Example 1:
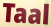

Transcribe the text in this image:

Taal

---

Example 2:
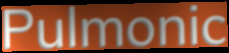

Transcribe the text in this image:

Pulmonic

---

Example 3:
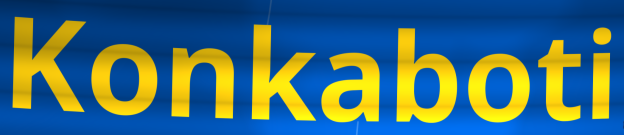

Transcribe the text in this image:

Konkaboti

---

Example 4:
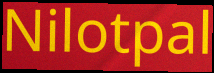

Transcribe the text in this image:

Nilotpal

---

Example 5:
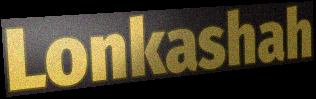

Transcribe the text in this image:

Lonkashah